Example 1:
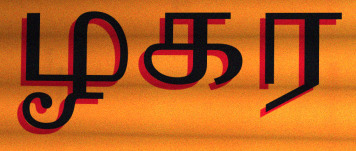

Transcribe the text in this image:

ழகர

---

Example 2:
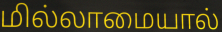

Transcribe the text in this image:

மில்லாமையால்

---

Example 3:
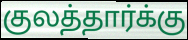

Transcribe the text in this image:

குலத்தார்க்கு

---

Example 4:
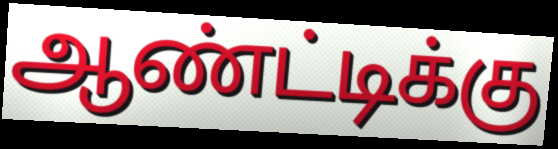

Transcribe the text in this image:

ஆண்ட்டிக்கு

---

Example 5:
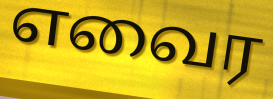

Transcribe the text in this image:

எவைர